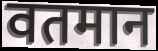
वतमान